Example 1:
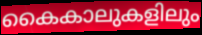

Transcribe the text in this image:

കൈകാലുകളിലും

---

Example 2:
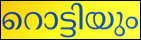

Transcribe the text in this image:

റൊട്ടിയും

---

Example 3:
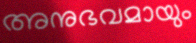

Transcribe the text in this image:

അനുഭവമായും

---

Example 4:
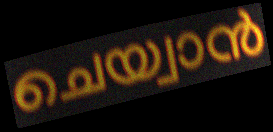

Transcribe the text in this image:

ചെയ്വാൻ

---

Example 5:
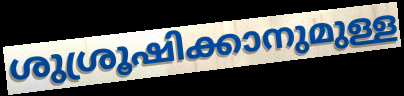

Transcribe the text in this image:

ശുശ്രൂഷിക്കാനുമുള്ള